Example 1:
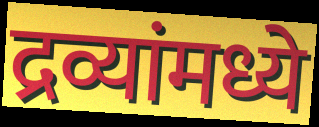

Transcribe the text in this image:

द्रव्यांमध्ये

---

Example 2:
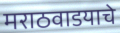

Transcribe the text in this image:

मराठवाडयाचे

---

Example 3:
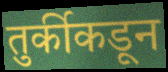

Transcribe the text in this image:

तुर्कीकडून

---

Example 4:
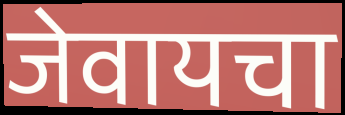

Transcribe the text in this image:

जेवायचा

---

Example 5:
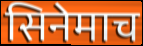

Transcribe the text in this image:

सिनेमाच